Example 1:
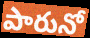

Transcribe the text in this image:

పారునో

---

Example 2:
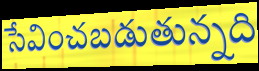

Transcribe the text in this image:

సేవించబడుతున్నది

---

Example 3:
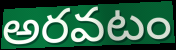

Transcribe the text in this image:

అరవటం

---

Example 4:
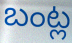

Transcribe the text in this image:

బంట్ల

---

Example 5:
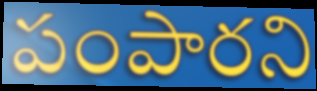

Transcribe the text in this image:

పంపారని